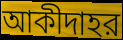
আকীদাহর